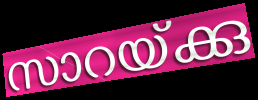
സാറയ്‌ക്കു